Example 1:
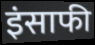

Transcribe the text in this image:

इंसाफी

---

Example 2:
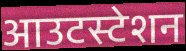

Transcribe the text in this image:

आउटस्टेशन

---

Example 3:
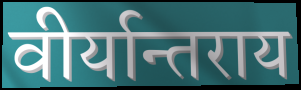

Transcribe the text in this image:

वीर्यान्तराय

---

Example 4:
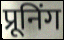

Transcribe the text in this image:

प्रूनिंग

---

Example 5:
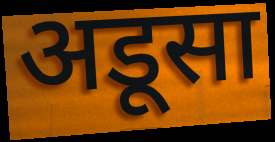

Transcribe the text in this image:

अडूसा